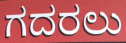
ಗದರಲು